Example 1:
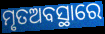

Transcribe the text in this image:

ମୃତଅବସ୍ଥାରେ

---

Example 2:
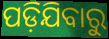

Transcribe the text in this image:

ପଡ଼ିଯିବାରୁ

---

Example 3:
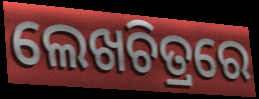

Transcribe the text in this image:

ଲେଖଚିତ୍ରରେ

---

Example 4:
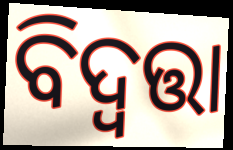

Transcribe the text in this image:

ବିଦ୍ୱତ୍ତା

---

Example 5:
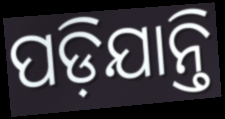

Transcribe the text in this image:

ପଡ଼ିଯାନ୍ତି